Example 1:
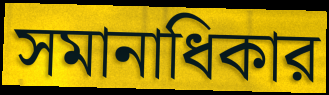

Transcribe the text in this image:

সমানাধিকার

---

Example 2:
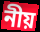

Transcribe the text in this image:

নীয়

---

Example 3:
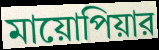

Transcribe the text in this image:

মায়োপিয়ার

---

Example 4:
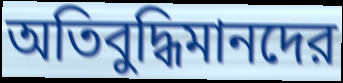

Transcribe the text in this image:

অতিবুদ্ধিমানদের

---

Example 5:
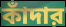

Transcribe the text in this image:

কাঁদার